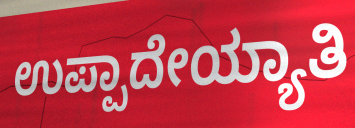
ಉಪ್ಪಾದೇಯ್ಯಾತಿ